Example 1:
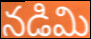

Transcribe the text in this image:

నడిమి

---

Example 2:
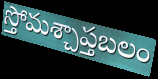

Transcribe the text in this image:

స్తోమశ్చాప్తబలం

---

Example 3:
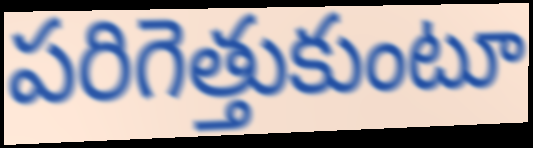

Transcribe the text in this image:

పరిగెత్తుకుంటూ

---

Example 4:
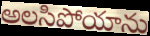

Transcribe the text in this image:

అలసిపోయాను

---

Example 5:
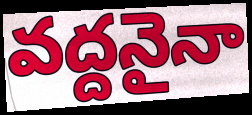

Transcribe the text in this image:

వద్దనైనా